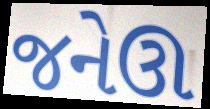
જનેઊ